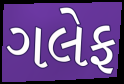
ગલેફ